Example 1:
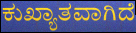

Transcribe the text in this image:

ಕುಖ್ಯಾತವಾಗಿದೆ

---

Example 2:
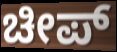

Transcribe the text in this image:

ಚೀಪ್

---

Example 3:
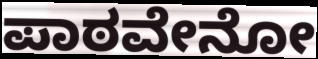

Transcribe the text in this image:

ಪಾಠವೇನೋ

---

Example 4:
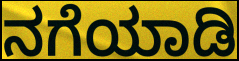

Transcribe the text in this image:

ನಗೆಯಾಡಿ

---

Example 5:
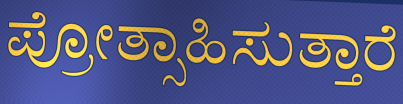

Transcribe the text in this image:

ಪ್ರೋತ್ಸಾಹಿಸುತ್ತಾರೆ